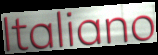
Italiano